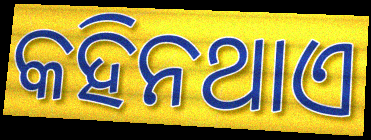
କହିନଥାଏ